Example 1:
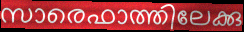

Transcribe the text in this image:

സാരെഫാത്തിലേക്കു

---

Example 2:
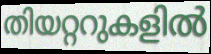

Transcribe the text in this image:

തിയറ്ററുകളിൽ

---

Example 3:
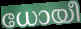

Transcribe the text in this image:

ധോയീ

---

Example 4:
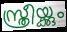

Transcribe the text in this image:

സ്ത്രീയ്ക്കും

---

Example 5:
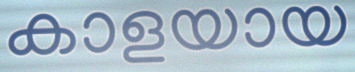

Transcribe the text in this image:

കാളയായ